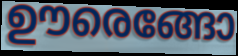
ഊരെങ്ങോ